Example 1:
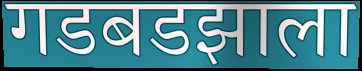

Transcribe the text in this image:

गडबडझाला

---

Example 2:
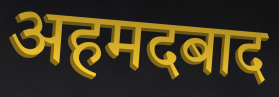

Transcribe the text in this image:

अहमदबाद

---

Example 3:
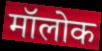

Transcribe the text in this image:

मॉलोक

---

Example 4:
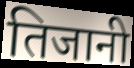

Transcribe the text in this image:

तिजानी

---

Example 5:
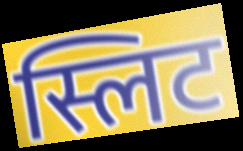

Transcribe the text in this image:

स्लिट